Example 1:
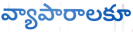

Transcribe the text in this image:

వ్యాపారాలకూ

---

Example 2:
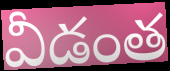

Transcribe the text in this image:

వీడంత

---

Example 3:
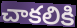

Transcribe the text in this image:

చాకలికి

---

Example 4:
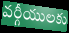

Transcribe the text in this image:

వర్గీయులకు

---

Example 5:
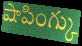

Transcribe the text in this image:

షాపింగ్కు